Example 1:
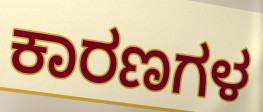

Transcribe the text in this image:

ಕಾರಣಗಳ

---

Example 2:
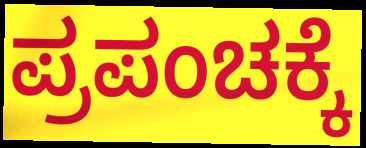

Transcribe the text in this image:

ಪ್ರಪಂಚಕ್ಕೆ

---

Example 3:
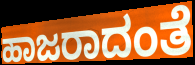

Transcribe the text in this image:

ಹಾಜರಾದಂತೆ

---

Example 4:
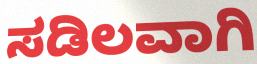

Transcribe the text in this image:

ಸಡಿಲವಾಗಿ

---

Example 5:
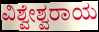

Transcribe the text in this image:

ವಿಶ್ವೇಶ್ವರಾಯ